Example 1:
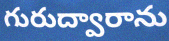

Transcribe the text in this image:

గురుద్వారాను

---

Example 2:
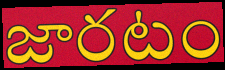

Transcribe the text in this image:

జారటం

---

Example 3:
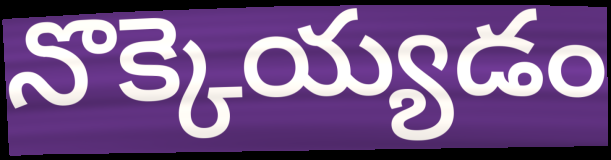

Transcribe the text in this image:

నొక్కెయ్యడం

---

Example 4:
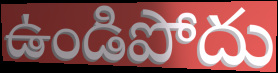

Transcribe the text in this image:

ఉండిపోదు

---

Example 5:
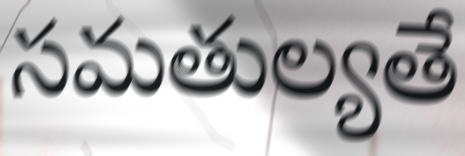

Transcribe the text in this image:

సమతుల్యతే